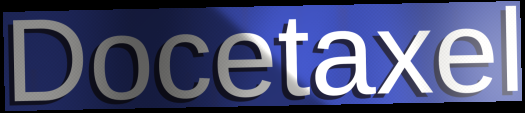
Docetaxel